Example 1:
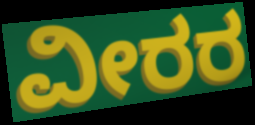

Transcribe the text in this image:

ವೀರರ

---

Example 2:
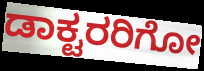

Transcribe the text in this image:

ಡಾಕ್ಟರರಿಗೋ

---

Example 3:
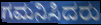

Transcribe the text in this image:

ಗಮನಿಸಿದರು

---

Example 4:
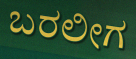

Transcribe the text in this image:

ಬರಲೀಗ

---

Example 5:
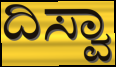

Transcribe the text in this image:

ದಿಸ್ವಾ